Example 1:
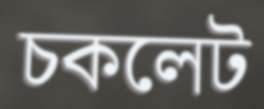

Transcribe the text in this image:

চকলেট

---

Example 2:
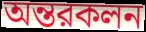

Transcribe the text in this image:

অন্তরকলন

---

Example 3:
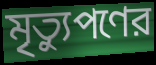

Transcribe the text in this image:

মৃত্যুপণের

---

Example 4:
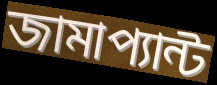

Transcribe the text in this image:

জামাপ্যান্ট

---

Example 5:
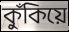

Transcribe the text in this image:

কুঁকিয়ে